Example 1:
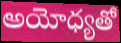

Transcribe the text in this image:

అయోధ్యతో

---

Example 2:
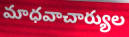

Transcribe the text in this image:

మాధవాచార్యుల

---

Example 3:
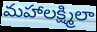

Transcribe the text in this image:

మహాలక్ష్మిలా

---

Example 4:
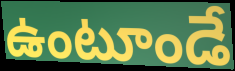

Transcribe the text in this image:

ఉంటూండే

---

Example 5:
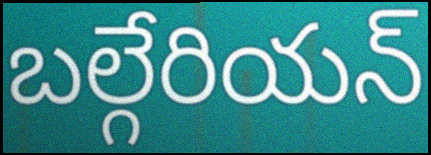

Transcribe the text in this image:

బల్గేరియన్